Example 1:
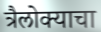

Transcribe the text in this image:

त्रैलोक्याचा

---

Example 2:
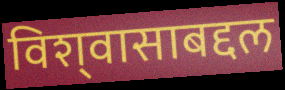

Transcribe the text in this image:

विश्वासाबद्दल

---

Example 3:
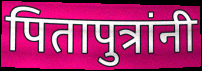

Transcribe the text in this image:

पितापुत्रांनी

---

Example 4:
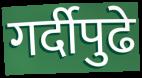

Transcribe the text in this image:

गर्दीपुढे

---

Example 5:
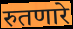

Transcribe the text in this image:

रुतणारे